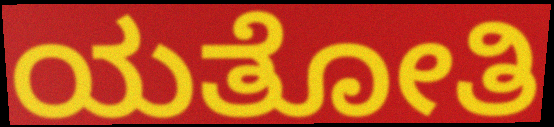
ಯತೋತಿ